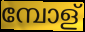
മ്പോള്